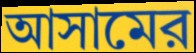
আসামের